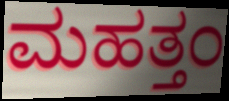
ಮಹತ್ತಂ